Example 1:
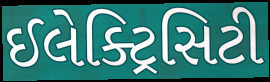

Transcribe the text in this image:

ઈલેક્ટ્રિસિટી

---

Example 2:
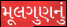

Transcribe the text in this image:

મૂલગુણનું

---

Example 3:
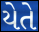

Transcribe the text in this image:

યેતે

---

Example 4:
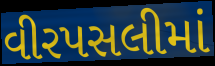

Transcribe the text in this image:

વીરપસલીમાં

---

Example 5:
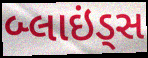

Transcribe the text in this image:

બ્લાઇંડ્સ